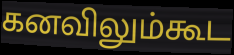
கனவிலும்கூட